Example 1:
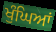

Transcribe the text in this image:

ਖੁੰਘਿਆਂ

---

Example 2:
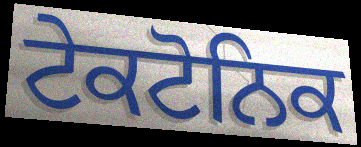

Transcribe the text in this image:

ਟੇਕਟੋਨਿਕ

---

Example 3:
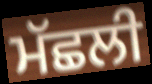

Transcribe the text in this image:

ਮੱਛਲੀ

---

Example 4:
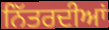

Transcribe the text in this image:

ਨਿੱਤਰਦੀਆਂ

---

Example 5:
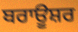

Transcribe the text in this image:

ਬਰਾਊਸ਼ਰ